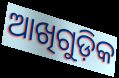
ଆଖିଗୁଡ଼ିକ